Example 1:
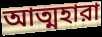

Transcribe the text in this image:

আত্মহারা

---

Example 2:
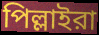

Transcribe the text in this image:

পিল্লাইরা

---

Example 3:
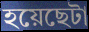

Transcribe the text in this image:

হয়েছেটা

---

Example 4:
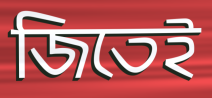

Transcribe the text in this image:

জিতেই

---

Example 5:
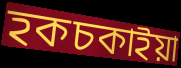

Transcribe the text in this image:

হকচকাইয়া